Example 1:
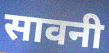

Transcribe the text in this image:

सावनी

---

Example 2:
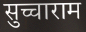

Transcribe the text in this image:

सुच्चाराम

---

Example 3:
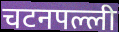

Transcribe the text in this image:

चटनपल्ली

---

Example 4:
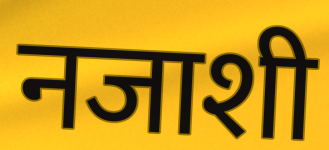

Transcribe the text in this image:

नजाशी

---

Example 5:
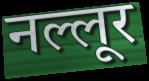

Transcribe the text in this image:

नल्लूर